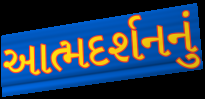
આત્મદર્શનનું